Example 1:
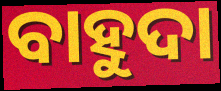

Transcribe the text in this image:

ବାହୁଦା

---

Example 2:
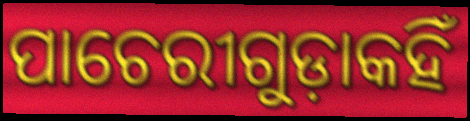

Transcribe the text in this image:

ପାଚେରୀଗୁଡ଼ାକହିଁ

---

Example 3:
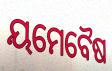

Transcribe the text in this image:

ୟମେବୈଷ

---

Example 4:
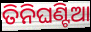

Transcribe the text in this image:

ତିନିଘଣ୍ଟିଆ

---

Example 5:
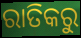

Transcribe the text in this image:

ରାତିକରୁ